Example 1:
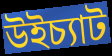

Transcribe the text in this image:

উইচ্যাট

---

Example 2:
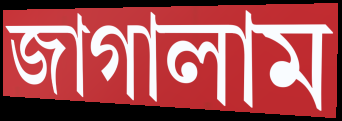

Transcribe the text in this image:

জাগালাম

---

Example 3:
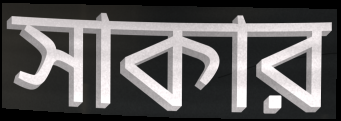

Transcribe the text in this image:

সাকার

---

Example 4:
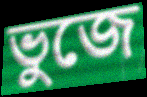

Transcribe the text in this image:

ভুজে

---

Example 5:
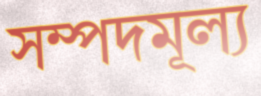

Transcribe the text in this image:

সম্পদমূল্য